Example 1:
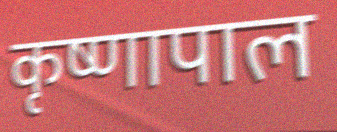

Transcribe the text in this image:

कृष्णापाल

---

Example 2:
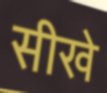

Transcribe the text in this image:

सीखे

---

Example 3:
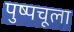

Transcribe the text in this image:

पुष्पचूला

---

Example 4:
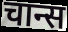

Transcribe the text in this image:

चान्स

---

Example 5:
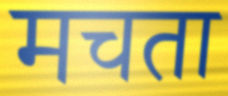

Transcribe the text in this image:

मचता